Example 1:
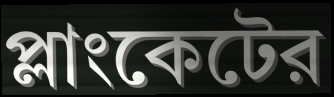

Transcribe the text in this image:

প্লাংকেটের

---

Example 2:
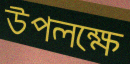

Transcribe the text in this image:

উপলক্ষে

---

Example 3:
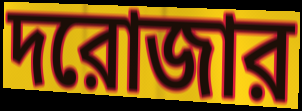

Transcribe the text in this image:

দরোজার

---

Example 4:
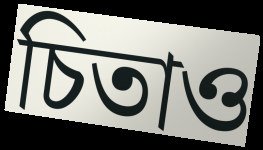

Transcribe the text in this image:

চিতাও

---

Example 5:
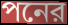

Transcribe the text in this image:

পনের